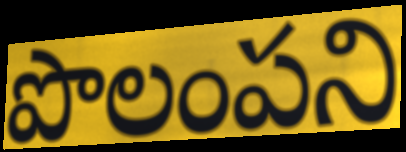
పొలంపని